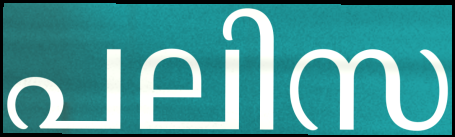
പലിസ